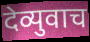
देव्युवाच